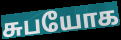
சுபயோக